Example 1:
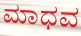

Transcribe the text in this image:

ಮಾಧವ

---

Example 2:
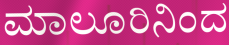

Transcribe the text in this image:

ಮಾಲೂರಿನಿಂದ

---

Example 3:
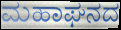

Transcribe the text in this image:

ಮಹಾಘನದ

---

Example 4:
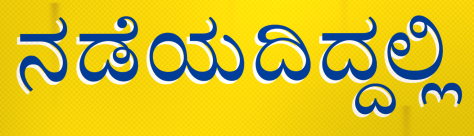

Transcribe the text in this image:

ನಡೆಯದಿದ್ದಲ್ಲಿ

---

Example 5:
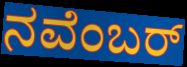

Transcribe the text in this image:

ನವೆಂಬರ್